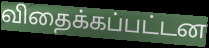
விதைக்கப்பட்டன